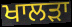
ਖਾਲੜਾ